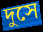
দুসে